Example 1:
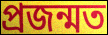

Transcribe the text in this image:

প্ৰজন্মত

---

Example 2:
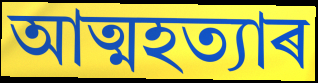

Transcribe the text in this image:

আত্মহত্যাৰ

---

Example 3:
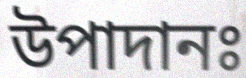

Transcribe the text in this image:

উপাদানঃ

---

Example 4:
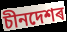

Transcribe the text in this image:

চীনদেশৰ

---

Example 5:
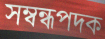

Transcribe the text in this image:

সম্বন্ধপদক